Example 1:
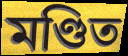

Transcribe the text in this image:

মণ্ডিত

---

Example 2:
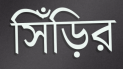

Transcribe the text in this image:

সিঁড়ির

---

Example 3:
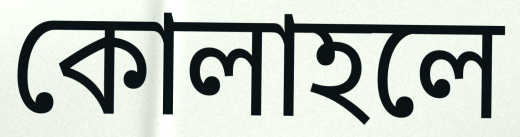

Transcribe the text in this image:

কোলাহলে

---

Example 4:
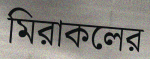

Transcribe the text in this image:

মিরাকলের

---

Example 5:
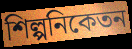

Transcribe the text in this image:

শিল্পনিকেতন